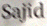
Sajid